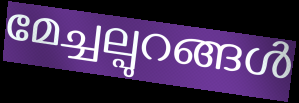
മേച്ചല്പുറങ്ങൾ